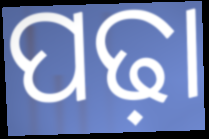
ପଢ଼ା